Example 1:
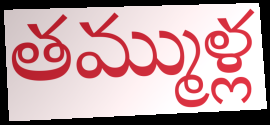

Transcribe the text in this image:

తమ్ముళ్ల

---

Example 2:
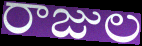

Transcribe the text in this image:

రాజుల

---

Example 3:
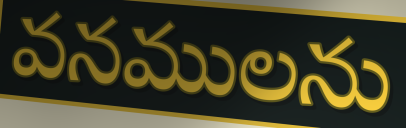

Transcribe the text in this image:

వనములను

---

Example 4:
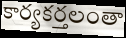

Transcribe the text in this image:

కార్యకర్తలంతా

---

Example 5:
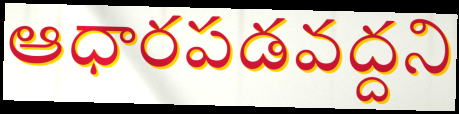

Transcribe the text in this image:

ఆధారపడవద్దని